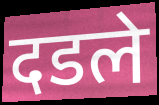
दडले